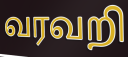
வரவறி